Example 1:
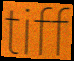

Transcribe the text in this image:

tiff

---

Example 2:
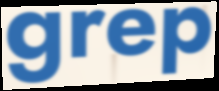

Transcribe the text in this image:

grep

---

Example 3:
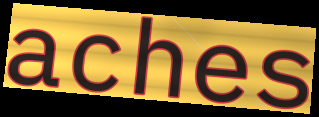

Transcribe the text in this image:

aches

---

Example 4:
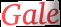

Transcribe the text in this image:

Gale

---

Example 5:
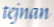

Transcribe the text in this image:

tejnan